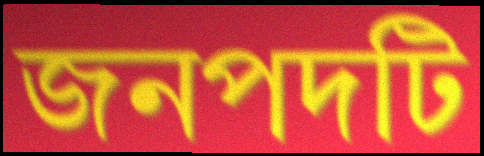
জনপদটি